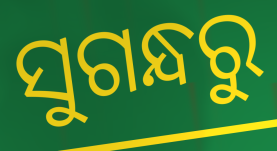
ସୁଗନ୍ଧରୁ